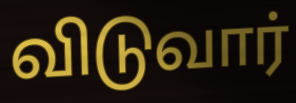
விடுவார்